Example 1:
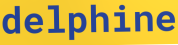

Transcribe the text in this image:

delphine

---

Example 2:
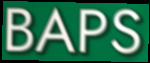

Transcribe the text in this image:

BAPS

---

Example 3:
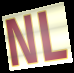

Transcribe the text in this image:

NL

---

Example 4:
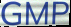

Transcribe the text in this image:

GMP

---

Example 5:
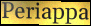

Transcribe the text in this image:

Periappa